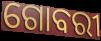
ଗୋବରୀ